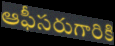
ఆఫీసరుగారికి